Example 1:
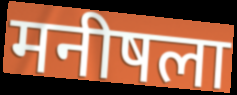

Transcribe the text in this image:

मनीषला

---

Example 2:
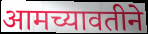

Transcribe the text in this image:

आमच्यावतीने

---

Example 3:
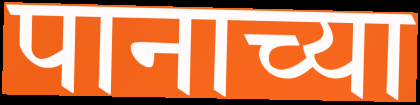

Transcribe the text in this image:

पानाच्या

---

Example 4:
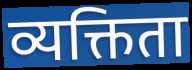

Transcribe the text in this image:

व्यक्तिता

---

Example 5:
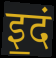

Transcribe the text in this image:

इ॒दं